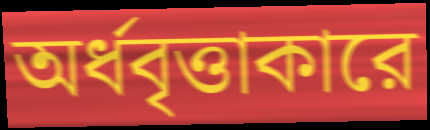
অর্ধবৃত্তাকারে